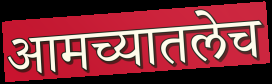
आमच्यातलेच